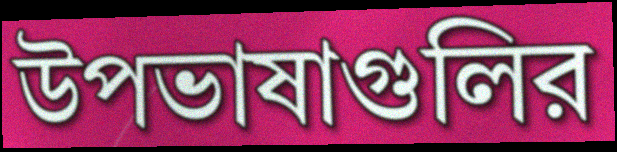
উপভাষাগুলির